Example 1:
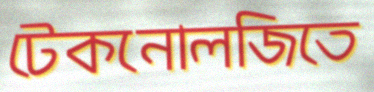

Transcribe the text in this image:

টেকনোলজিতে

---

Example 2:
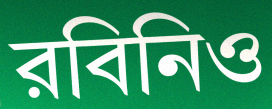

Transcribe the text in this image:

রবিনিও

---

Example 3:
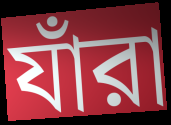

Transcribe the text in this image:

যাঁরা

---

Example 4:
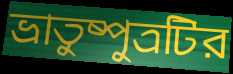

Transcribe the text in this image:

ভ্রাতুষ্পুত্রটির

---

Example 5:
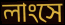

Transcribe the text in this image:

লাংসে